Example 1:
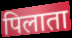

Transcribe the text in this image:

पिलाता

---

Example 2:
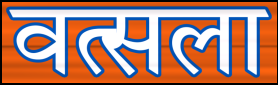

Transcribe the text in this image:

वत्‍सला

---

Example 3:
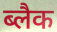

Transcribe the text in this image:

ब्लैक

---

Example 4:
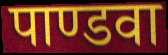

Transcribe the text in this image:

पाण्डवा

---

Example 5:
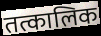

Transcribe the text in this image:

तत्कालिक